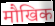
मौखिक